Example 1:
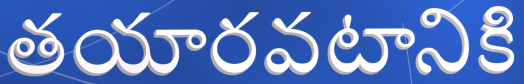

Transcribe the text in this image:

తయారవటానికి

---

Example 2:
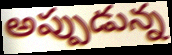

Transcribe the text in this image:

అప్పుడున్న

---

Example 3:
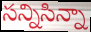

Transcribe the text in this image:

సన్నిసిన్నా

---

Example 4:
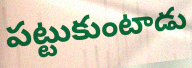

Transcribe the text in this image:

పట్టుకుంటాడు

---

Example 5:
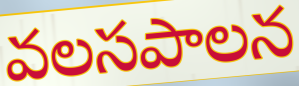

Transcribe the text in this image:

వలసపాలన